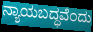
ನ್ಯಾಯಬದ್ಧವೆಂದು